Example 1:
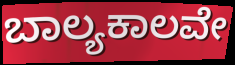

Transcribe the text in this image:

ಬಾಲ್ಯಕಾಲವೇ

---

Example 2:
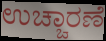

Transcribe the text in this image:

ಉಚ್ಚಾರಣೆ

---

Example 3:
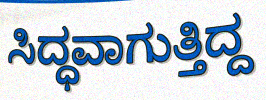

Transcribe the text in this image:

ಸಿದ್ಧವಾಗುತ್ತಿದ್ದ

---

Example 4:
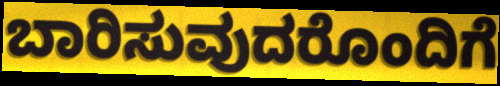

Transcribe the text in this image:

ಬಾರಿಸುವುದರೊಂದಿಗೆ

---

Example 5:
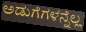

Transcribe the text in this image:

ಅಡುಗೆಗಳನ್ನೆಲ್ಲ